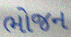
ભોજન